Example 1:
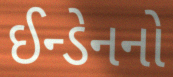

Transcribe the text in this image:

ઈન્ડેનનો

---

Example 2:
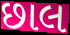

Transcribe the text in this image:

છાલ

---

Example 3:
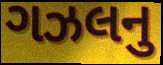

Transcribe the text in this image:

ગઝલનુ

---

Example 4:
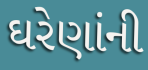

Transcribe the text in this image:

ઘરેણાંની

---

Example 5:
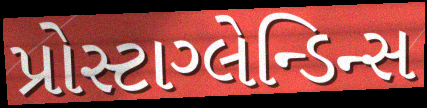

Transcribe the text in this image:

પ્રોસ્ટાગ્લેન્ડિન્સ